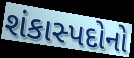
શંકાસ્પદોનો